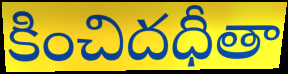
కించిదధీతా